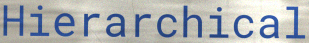
Hierarchical